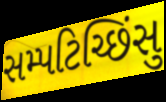
સમ્પટિચ્છિંસુ